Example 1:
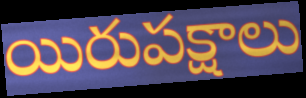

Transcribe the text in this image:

యిరుపక్షాలు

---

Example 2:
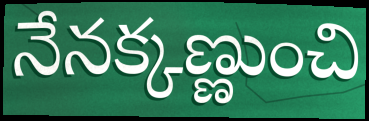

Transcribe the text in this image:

నేనక్కణ్ణుంచి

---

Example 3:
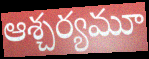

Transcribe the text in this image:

ఆశ్చర్యమూ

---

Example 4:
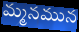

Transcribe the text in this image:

మ్మనమున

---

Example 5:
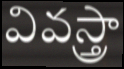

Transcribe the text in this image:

వివస్త్రా